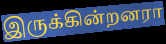
இருக்கின்றனரா